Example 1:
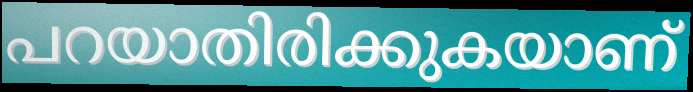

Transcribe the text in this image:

പറയാതിരിക്കുകയാണ്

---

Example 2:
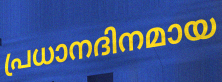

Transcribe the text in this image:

പ്രധാനദിനമായ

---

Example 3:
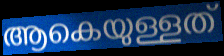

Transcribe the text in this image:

ആകെയുള്ളത്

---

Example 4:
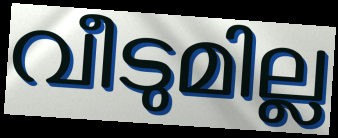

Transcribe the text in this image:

വീടുമില്ല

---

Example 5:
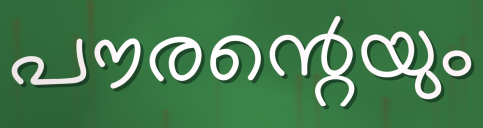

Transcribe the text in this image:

പൗരന്റെയും